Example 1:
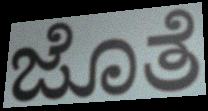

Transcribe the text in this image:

ಜೊತೆ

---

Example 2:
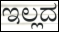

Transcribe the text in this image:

ಇಲ್ಲದ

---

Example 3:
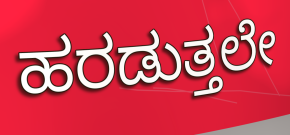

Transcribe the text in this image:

ಹರಡುತ್ತಲೇ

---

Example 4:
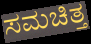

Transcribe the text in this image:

ಸಮಚಿತ್ತ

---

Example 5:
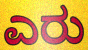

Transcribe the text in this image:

ಎರು